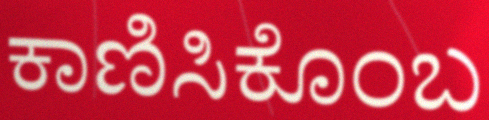
ಕಾಣಿಸಿಕೊಂಬ